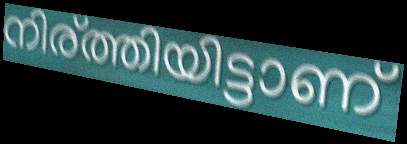
നിര്ത്തിയിട്ടാണ്